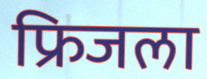
फ्रिजला